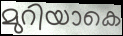
മുറിയാകെ